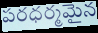
పరధర్మమైన